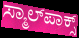
ಸ್ಮಾಲ್‌ಪಾಕ್ಸ್